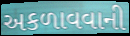
અકળાવવાની